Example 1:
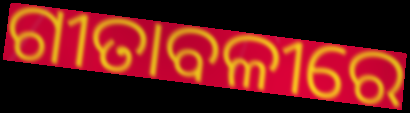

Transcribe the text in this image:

ଗୀତାବଳୀରେ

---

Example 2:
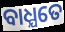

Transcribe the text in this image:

ବାଧ୍ଯତେ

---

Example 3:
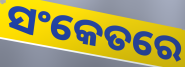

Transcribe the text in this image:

ସଂକେତରେ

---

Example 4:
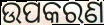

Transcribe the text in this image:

ଉପକରଣ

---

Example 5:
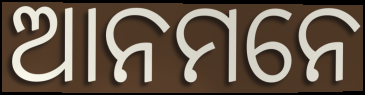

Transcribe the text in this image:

ଆନମନେ